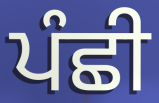
ਪੰਛੀ